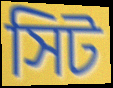
সিট